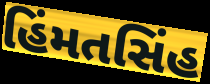
હિંમતસિંહ